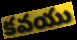
కవయు